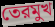
তেরমুখ